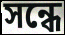
সন্ধে